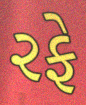
રફે